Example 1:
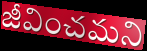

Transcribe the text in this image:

జీవించమని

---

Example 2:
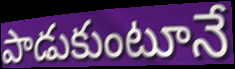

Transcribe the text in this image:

పాడుకుంటూనే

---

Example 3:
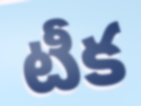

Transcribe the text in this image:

టీక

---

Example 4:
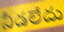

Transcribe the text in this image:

నీడలేదు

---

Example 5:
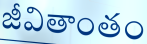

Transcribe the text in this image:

జీవితాంతం